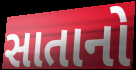
સાતાનો